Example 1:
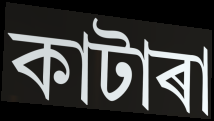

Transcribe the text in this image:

কাটাৰা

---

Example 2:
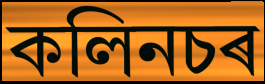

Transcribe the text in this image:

কলিনচৰ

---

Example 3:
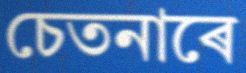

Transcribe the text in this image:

চেতনাৰে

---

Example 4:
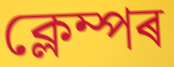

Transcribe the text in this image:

ক্লেম্পৰ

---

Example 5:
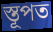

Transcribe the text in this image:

স্তূপত